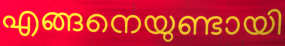
എങ്ങനെയുണ്ടായി